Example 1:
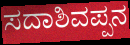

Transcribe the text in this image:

ಸದಾಶಿವಪ್ಪನ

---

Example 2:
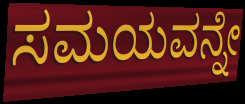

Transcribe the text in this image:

ಸಮಯವನ್ನೇ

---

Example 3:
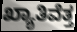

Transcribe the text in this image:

ಖ್ಯಾತಿವೆತ್ತ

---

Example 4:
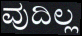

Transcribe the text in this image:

ವುದಿಲ್ಲ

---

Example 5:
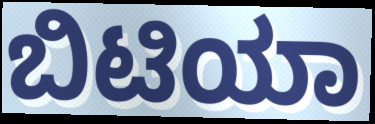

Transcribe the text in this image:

ಬಿಟಿಯಾ